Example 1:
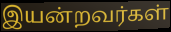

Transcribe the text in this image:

இயன்றவர்கள்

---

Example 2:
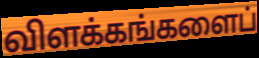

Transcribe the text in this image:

விளக்கங்களைப்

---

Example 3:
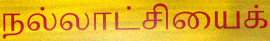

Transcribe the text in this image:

நல்லாட்சியைக்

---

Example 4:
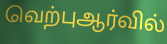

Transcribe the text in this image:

வெற்புஆர்வில்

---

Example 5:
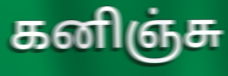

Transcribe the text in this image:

கனிஞ்சு